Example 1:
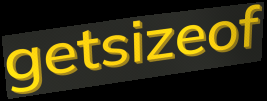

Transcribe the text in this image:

getsizeof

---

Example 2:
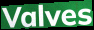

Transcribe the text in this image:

Valves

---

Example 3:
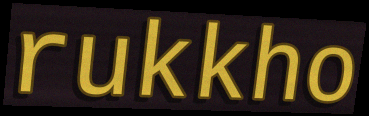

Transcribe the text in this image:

rukkho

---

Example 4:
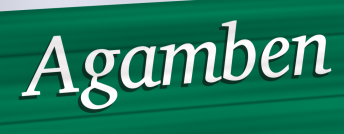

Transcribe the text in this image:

Agamben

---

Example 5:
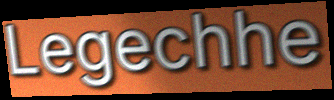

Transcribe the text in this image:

Legechhe